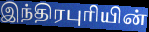
இந்திரபுரியின்